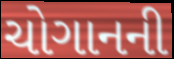
ચોગાનની